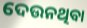
ଦେଉନଥିବା